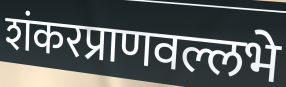
शंकरप्राणवल्लभे